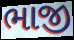
ભાજી